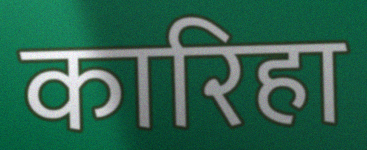
कारिहा